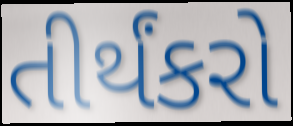
તીર્થંકરો